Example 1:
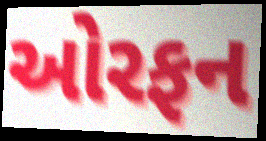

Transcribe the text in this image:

ઓરફન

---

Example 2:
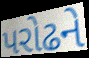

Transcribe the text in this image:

પરોઢને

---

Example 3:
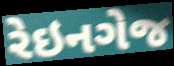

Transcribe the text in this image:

રેઇનગેજ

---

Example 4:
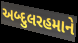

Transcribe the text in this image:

અબ્દુલરહમાને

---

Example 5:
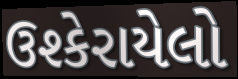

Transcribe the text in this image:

ઉશ્કેરાયેલો